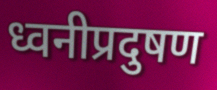
ध्वनीप्रदुषण